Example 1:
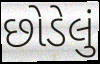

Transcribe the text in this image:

છોડેલું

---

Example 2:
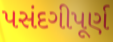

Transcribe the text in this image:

પસંદગીપૂર્ણ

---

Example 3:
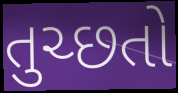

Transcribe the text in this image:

તુચ્છતો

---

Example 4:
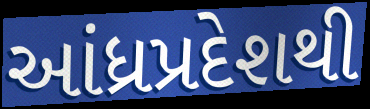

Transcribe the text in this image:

આંધ્રપ્રદેશથી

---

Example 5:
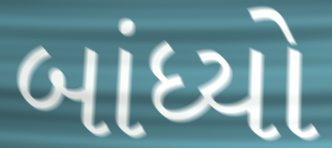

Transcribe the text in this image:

બાંધ્યો